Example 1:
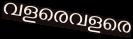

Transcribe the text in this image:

വളരെവളരെ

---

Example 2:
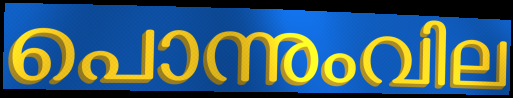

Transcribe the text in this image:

പൊന്നുംവില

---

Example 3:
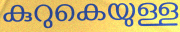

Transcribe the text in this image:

കുറുകെയുള്ള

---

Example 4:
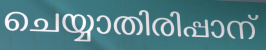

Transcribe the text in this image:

ചെയ്യാതിരിപ്പാന്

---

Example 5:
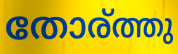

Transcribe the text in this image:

തോര്ത്തു